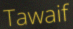
Tawaif